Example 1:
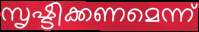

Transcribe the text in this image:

സൃഷ്ടിക്കണമെന്ന്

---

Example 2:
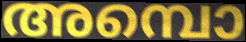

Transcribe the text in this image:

അമ്പൊ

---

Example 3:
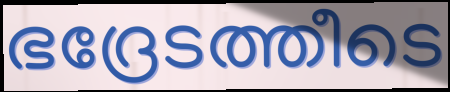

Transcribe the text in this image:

ഭദ്രേടത്തീടെ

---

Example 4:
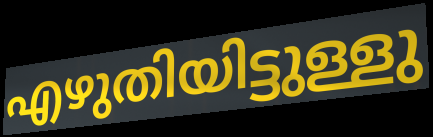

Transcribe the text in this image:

എഴുതിയിട്ടുള്ളു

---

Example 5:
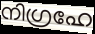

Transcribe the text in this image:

നിഗ്രഹേ